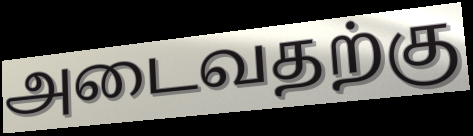
அடைவதற்கு